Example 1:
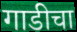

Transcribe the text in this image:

गाडीचा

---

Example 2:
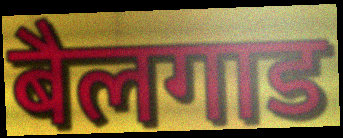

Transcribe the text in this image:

बैलगाड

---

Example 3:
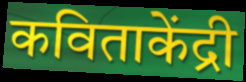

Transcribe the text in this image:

कविताकेंद्री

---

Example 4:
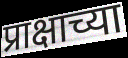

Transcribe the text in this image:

प्राक्षाच्या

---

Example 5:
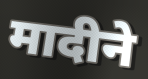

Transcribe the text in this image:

मादीने